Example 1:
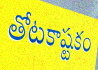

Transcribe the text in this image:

తోటకాష్టకం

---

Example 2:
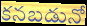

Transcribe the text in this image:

కనబడునో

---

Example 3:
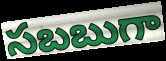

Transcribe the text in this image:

సబబుగా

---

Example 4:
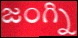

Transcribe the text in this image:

జంగ్ని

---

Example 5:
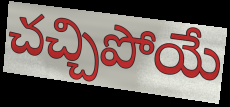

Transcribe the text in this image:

చచ్చిపోయే